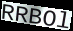
RRBOl